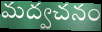
మద్వచనం